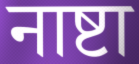
नाष्टा